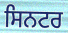
ਸਿਨਟਰ